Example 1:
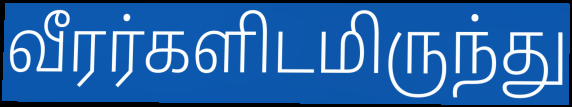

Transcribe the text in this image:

வீரர்களிடமிருந்து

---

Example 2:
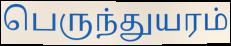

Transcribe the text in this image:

பெருந்துயரம்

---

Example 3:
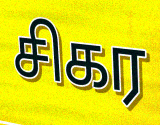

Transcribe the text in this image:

சிகர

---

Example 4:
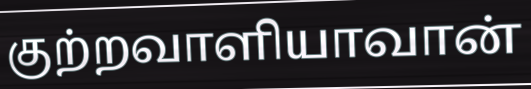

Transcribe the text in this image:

குற்றவாளியாவான்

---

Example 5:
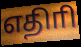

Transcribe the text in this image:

எதிரி